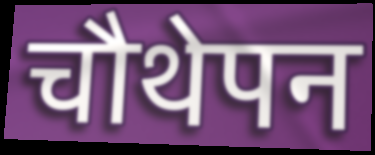
चौथेपन